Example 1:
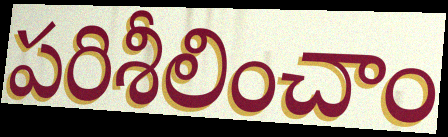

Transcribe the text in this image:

పరిశీలించాం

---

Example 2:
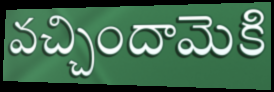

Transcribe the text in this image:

వచ్చిందామెకి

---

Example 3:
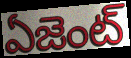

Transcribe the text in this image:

ఏజెంట్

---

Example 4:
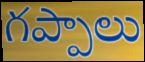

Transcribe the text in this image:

గప్పాలు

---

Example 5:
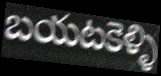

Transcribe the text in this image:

బయటకెళ్ళి